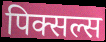
पिक्सल्स